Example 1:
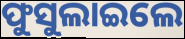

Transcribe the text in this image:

ଫୁସୁଲାଇଲେ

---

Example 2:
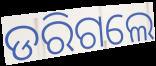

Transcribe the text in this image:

ଡରିଗଲେ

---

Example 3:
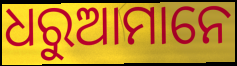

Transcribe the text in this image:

ଧରୁଆମାନେ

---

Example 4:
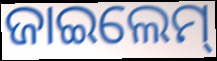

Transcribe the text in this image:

ଜାଇଲେମ୍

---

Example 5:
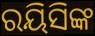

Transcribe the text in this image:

ରୟିସିଙ୍କ